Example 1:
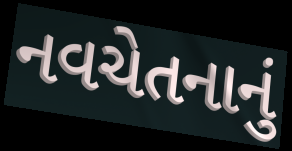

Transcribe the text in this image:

નવચેતનાનું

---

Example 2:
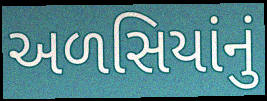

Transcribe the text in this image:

અળસિયાંનું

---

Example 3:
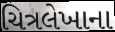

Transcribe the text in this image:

ચિત્રલેખાના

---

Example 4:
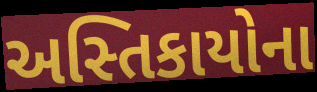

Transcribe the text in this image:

અસ્તિકાયોના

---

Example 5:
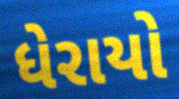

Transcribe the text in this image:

ધેરાયો